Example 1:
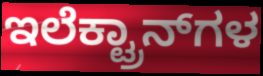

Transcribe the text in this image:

ಇಲೆಕ್ಟ್ರಾನ್‍ಗಳ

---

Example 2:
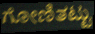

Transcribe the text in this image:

ಗೋಣಿತಟ್ಟು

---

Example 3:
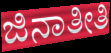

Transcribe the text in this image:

ಜಿನಾತೀತಿ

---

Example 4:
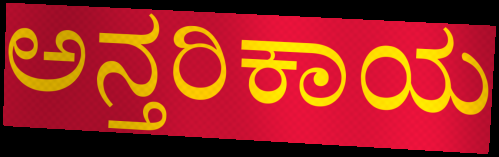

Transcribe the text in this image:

ಅನ್ತರಿಕಾಯ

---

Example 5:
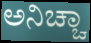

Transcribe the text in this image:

ಅನಿಚ್ಚಾ